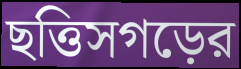
ছত্তিসগড়ের